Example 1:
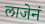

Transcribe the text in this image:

लाजेनं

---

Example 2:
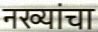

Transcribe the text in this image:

नख्यांचा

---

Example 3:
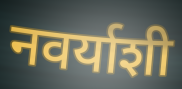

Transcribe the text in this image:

नवर्याशी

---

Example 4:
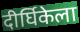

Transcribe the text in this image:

दीर्घिकेला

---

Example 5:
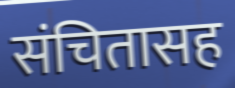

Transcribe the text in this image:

संचितासह